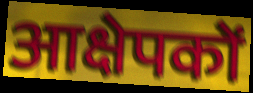
आक्षेपकों